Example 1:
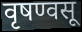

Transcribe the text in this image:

वृषण्वसू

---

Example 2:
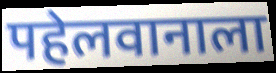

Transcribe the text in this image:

पहेलवानाला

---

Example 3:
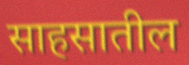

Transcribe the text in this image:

साहसातील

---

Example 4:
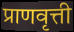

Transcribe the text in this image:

प्राणवृत्ती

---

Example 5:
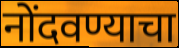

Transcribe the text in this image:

नोंदवण्याचा